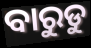
ବାରୁଡୁ